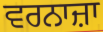
ਵਰਨਾਜ਼ਾ